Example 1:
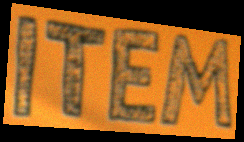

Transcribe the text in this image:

ITEM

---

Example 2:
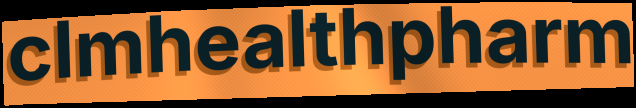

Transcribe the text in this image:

clmhealthpharm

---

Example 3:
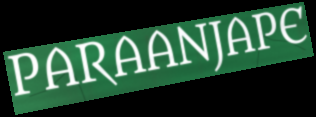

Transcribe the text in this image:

PARAANJAPE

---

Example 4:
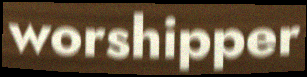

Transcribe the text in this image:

worshipper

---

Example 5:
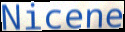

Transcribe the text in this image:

Nicene